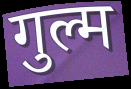
गुल्म